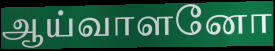
ஆய்வாளனோ